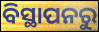
ବିସ୍ଥାପନରୁ